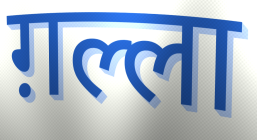
ग़ल्ला